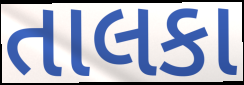
તાલકા